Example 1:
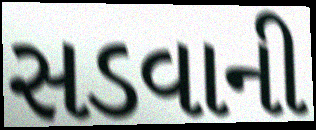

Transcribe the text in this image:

સડવાની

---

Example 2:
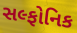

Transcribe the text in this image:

સલ્ફોનિક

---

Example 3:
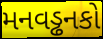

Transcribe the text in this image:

મનવડ્ઢનકો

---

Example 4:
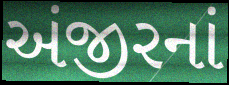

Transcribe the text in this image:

અંજીરનાં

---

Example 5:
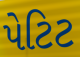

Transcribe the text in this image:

પેટિટ